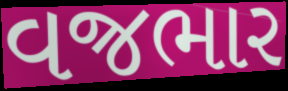
વજ્રભાર